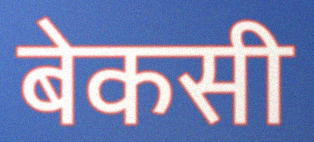
बेकसी